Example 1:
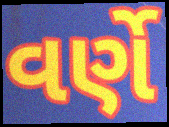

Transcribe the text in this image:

વર્ણે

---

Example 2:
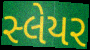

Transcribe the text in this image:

સ્લેયર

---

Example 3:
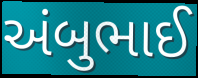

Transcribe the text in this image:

અંબુભાઈ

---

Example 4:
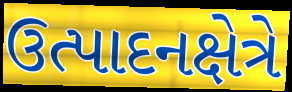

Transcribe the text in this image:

ઉત્પાદનક્ષેત્રે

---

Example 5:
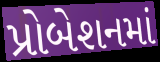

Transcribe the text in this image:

પ્રોબેશનમાં